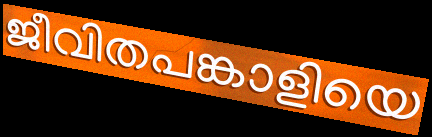
ജീവിതപങ്കാളിയെ